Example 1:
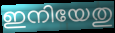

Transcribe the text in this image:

ഇനിയേതു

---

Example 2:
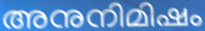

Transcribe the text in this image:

അനുനിമിഷം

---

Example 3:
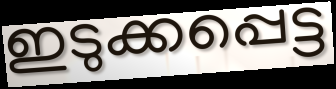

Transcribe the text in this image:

ഇടുക്കപ്പെട്ട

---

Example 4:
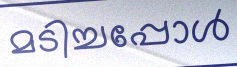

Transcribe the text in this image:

മടിച്ചപ്പോൾ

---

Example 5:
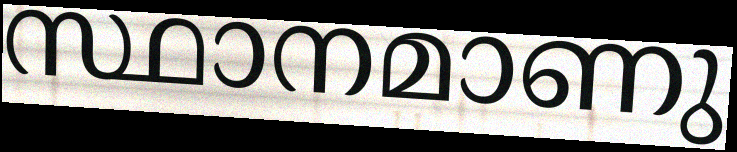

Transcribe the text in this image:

സ്ഥാനമാണു